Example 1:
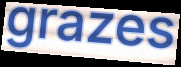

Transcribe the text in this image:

grazes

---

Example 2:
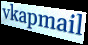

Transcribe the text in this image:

vkapmail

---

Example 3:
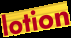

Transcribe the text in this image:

lotion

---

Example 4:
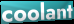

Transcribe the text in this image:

coolant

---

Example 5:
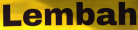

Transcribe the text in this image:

Lembah